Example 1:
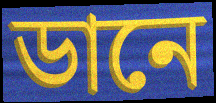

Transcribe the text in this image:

ডানে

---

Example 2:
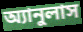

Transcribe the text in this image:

অ্যানুলাস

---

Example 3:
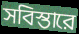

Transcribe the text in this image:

সবিস্তারে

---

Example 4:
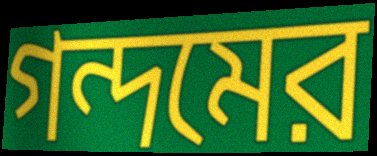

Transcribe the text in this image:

গন্দমের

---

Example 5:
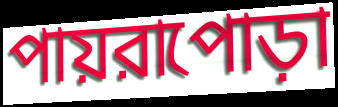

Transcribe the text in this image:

পায়রাপোড়া